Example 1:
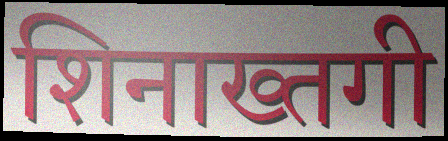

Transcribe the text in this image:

शिनाख्तगी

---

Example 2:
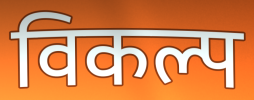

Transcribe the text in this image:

विकल्प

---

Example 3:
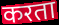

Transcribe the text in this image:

करता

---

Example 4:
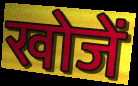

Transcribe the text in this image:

खोजें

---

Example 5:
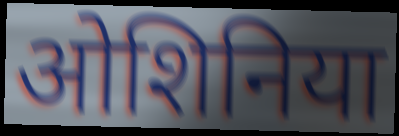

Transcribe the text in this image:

ओशिनिया